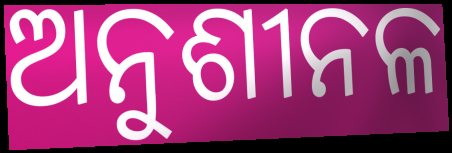
ଅନୁଶୀନଳ